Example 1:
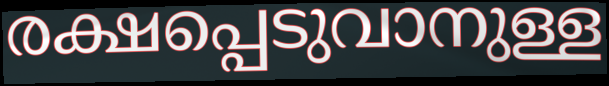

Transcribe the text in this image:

രക്ഷപ്പെടുവാനുള്ള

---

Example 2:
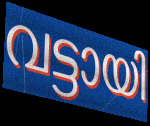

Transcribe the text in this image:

വട്ടായി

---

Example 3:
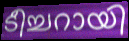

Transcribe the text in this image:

ടീച്ചറായി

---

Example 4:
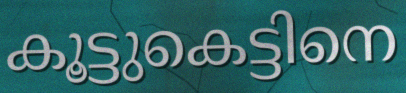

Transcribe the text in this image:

കൂട്ടുകെട്ടിനെ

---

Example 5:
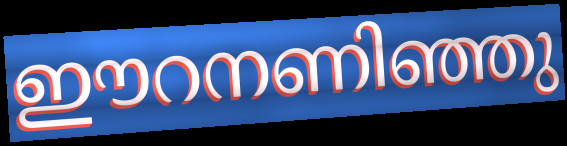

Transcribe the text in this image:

ഈറനണിഞ്ഞു